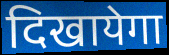
दिखायेगा